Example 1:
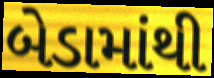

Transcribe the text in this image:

બેડામાંથી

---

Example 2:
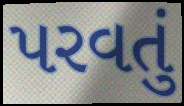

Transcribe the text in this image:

પરવતું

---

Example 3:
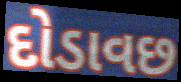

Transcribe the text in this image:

દોડાવછ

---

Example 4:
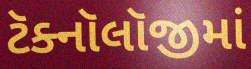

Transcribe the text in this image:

ટૅક્નૉલૉજીમાં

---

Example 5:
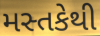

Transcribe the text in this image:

મસ્તકેથી